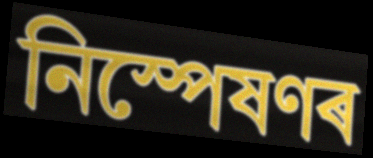
নিস্পেষণৰ